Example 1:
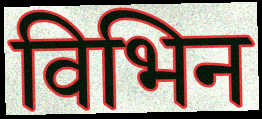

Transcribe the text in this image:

विभिन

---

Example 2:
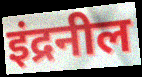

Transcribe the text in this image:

इंद्रनील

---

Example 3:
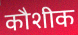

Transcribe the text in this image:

कौशीक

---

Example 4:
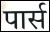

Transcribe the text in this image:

पार्स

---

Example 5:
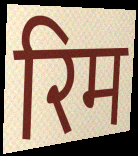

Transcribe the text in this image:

रिम